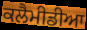
ਕਲੈਮੀਡੀਆ